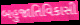
બહુજાતિવિકાસી